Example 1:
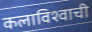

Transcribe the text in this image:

कलाविश्वाची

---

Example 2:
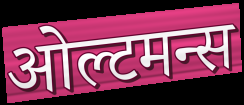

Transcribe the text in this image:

ओल्टमन्स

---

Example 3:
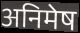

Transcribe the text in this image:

अनिमेष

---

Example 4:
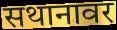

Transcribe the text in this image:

सथानावर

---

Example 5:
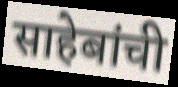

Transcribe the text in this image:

साहेबांची